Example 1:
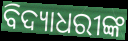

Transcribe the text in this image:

ବିଦ୍ୟାଧରୀଙ୍କ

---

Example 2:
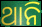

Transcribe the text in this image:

ଥାନି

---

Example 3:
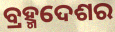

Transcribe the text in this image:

ବ୍ରହ୍ମଦେଶର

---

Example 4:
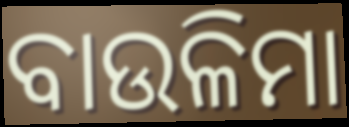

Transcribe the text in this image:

ବାଉଳିମା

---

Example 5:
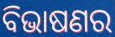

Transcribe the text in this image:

ବିଭାଷଣର